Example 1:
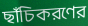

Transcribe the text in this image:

ছাঁচিকরণের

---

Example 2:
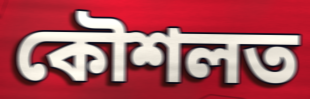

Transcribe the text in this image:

কৌশলত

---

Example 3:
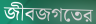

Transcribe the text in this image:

জীবজগতের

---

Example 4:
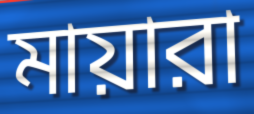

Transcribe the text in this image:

মায়ারা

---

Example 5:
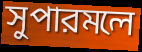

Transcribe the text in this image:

সুপারমলে